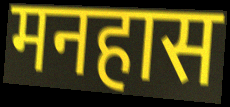
मनहास